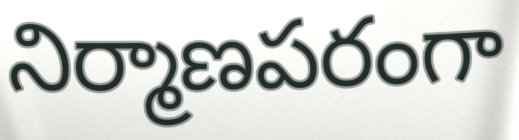
నిర్మాణపరంగా